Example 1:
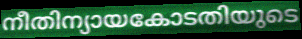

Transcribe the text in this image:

നീതിന്യായകോടതിയുടെ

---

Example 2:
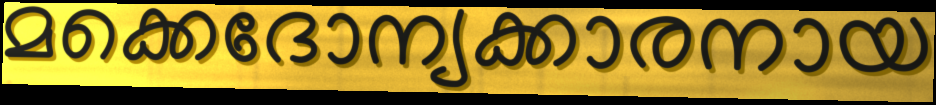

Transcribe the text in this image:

മക്കെദോന്യക്കാരനായ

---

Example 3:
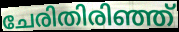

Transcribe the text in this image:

ചേരിതിരിഞ്ഞ്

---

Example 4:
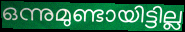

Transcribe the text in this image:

ഒന്നുമുണ്ടായിട്ടില്ല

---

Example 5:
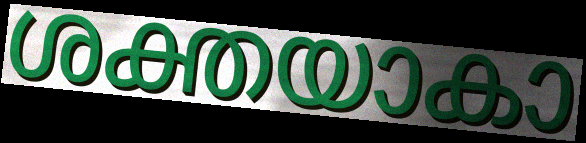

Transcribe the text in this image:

ശക്തയാകാ